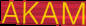
AKAM